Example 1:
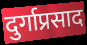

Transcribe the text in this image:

दुर्गाप्रसाद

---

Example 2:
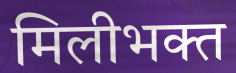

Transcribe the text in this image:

मिलीभक्त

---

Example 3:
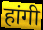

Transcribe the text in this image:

हांगी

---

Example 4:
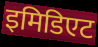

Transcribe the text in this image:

इमिडिएट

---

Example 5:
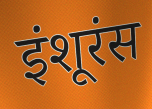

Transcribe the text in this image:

इंशूरंस